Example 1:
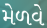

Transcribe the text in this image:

મેળવે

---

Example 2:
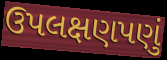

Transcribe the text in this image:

ઉપલક્ષણપણું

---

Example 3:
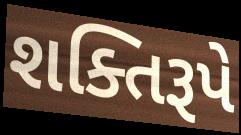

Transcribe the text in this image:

શક્તિરૂપે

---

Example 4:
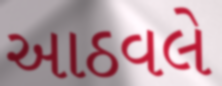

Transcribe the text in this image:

આઠવલે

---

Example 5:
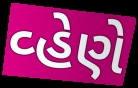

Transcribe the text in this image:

વ્હેણે